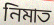
নিমাত